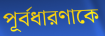
পূর্বধারণাকে